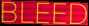
BLEED